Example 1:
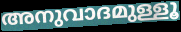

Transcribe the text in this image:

അനുവാദമുള്ളൂ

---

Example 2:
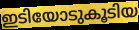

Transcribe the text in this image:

ഇടിയോടുകൂടിയ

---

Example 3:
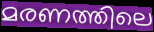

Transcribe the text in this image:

മരണത്തിലെ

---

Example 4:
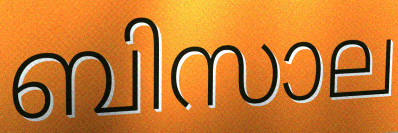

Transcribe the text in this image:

ബിസാല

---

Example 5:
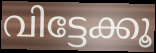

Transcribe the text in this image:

വിട്ടേക്കൂ